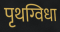
पृथग्विधा